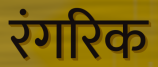
रंगरिक